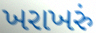
ખરાખરું